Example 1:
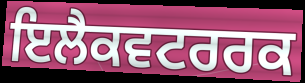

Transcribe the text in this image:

ਇਲੈਕਵਟਰਰਕ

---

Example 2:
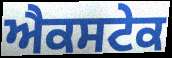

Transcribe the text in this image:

ਐਕਸਟੇਕ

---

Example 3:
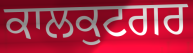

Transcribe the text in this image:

ਕਾਲਕੁਟਗਰ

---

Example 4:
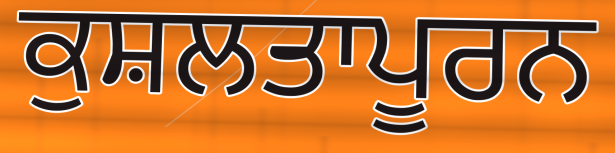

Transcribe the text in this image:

ਕੁਸ਼ਲਤਾਪੂਰਨ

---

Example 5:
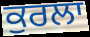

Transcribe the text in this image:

ਕੁਰਲਾ